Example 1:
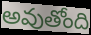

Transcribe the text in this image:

అవుతోంది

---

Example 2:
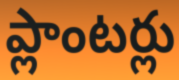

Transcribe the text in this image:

ప్లాంటర్లు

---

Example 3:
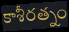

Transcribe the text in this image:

కాశీరత్నం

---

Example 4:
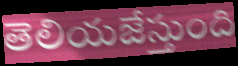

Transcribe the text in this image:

తెలియజేస్తుంది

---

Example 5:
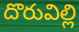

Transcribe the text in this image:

దొరువిల్లి